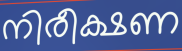
നിരീക്ഷണ